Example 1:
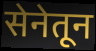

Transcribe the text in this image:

सेनेतून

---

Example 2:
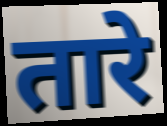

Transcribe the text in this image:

तारे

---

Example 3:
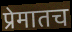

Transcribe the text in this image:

प्रेमातच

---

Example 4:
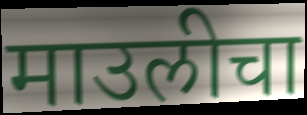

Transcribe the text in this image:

माउलीचा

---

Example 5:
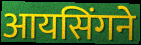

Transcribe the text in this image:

आयसिंगने